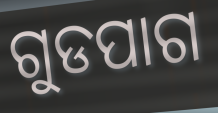
ଗୁଡପାଗ